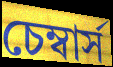
চেম্বার্স